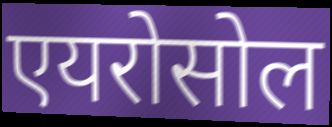
एयरोसोल